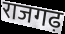
राजगढ़